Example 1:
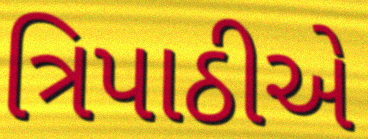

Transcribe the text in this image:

ત્રિપાઠીએ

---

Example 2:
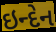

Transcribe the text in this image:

ઇન્દેન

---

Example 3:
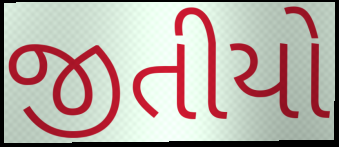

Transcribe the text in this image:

જીતીયો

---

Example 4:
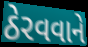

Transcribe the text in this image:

ઠેરવવાને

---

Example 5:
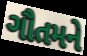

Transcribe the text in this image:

ગૌતમને